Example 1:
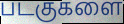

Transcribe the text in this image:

படகுகளை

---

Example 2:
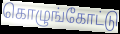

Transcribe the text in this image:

கொழுங்கோட்டு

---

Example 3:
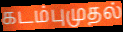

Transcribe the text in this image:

கடம்புமுதல்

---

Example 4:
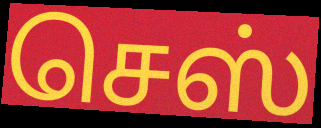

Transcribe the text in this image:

செஸ்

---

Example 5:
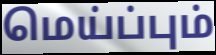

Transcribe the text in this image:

மெய்ப்பும்